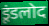
डूंडलोद